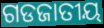
ଗଡଜାତୀୟ